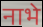
नाभे